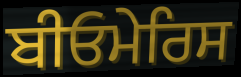
ਬੀਓਮੇਰਿਸ